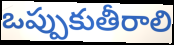
ఒప్పుకుతీరాలి